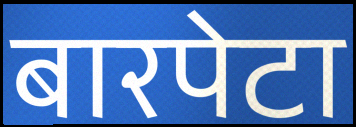
बारपेटा